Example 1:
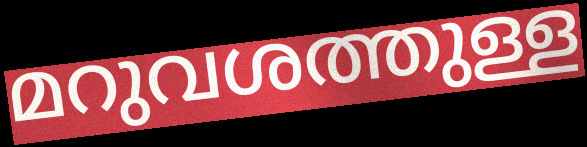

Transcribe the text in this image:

മറുവശത്തുള്ള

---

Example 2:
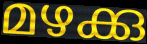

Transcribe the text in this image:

മഴക്കു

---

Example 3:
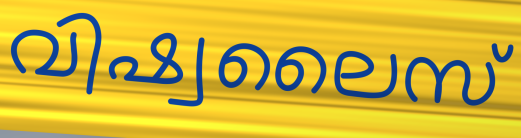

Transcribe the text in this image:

വിഷ്വലൈസ്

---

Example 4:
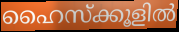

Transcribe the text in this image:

ഹൈസ്ക്കൂളിൽ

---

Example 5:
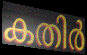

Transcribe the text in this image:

കതിർ